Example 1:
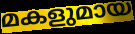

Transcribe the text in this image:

മകളുമായ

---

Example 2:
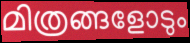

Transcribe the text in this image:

മിത്രങ്ങളോടും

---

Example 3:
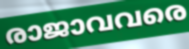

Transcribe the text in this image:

രാജാവവരെ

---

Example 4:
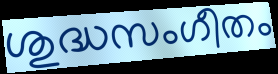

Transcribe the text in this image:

ശുദ്ധസംഗീതം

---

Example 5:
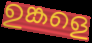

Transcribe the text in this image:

ഉങ്കളെ